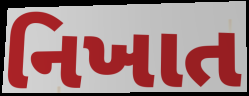
નિખાત